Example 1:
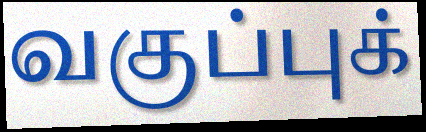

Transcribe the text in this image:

வகுப்புக்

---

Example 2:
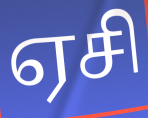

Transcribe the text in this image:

ஏசி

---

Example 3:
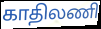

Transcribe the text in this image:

காதிலணி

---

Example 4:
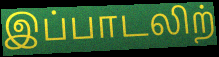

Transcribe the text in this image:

இப்பாடலிற்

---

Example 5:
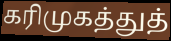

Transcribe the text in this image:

கரிமுகத்துத்